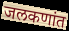
जलकणांत